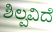
ಶಿಲ್ಪವಿದೆ